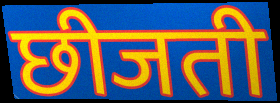
छीजती